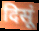
दिसूं